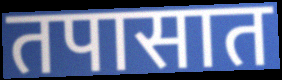
तपासात